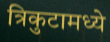
त्रिकुटामध्ये